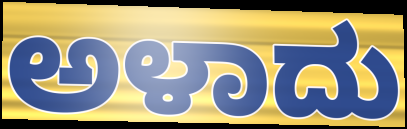
ಅಳಾದು